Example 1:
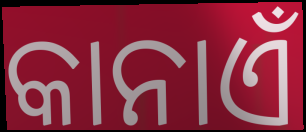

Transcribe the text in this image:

କାନାଏଁ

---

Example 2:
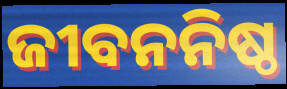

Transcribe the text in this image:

ଜୀବନନିଷ୍ଠ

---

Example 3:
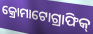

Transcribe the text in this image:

କ୍ରୋମାଟୋଗ୍ରାଫିକ୍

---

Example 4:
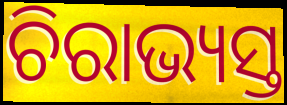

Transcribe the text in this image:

ଚିରାଭ୍ୟସ୍ତ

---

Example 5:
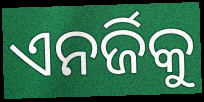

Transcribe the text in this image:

ଏନର୍ଜିକୁ